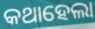
କଥାହେଲା